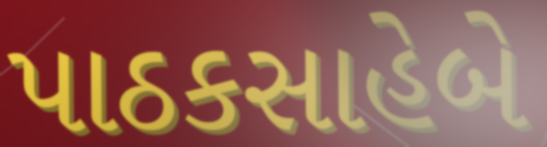
પાઠકસાહેબે